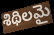
శిథిలమై